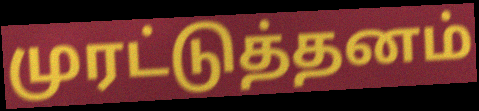
முரட்டுத்தனம்